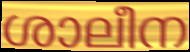
ശാലീന